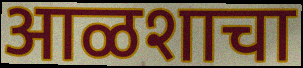
आळशाचा